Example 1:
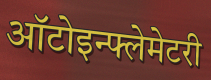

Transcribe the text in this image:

ऑटोइन्फ्लेमेटरी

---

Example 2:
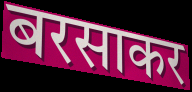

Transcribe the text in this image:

बरसाकर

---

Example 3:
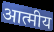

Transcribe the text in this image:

आत्मीय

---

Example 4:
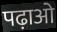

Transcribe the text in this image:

पढ़ाओ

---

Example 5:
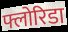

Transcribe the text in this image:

फ्लोरिडा